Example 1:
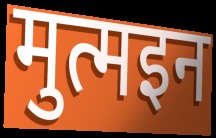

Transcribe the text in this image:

मुत्मइन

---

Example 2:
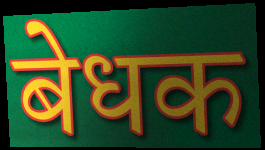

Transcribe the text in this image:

बेधक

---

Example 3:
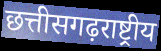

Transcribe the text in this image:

छत्तीसगढ़राष्ट्रीय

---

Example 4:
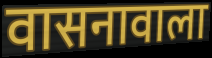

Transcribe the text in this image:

वासनावाला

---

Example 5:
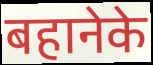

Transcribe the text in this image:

बहानेके